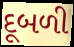
દૂબળી